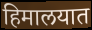
हिमालयात